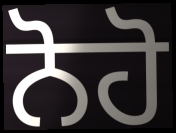
ਨੋਹੋ